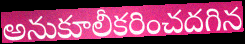
అనుకూలీకరించదగిన